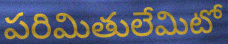
పరిమితులేమిటో